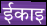
ईकाइ